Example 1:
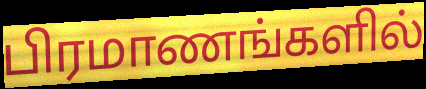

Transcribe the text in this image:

பிரமாணங்களில்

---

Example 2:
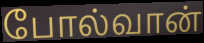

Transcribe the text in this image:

போல்வான்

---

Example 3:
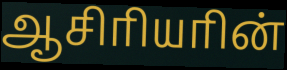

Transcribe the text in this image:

ஆசிரியரின்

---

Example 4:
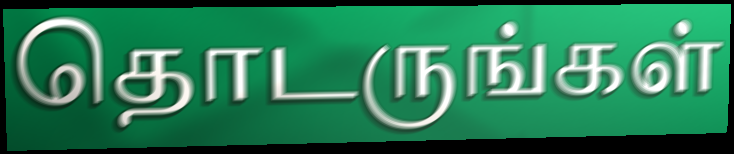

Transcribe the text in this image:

தொடருங்கள்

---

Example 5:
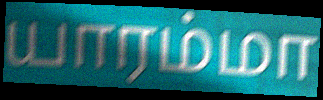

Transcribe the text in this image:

யாரம்மா